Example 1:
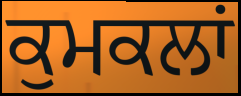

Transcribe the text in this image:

ਕੁਮਕਲਾਂ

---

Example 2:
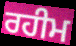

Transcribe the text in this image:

ਰਹੀਮ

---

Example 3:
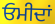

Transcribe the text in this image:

ਓਮੀਦਾਂ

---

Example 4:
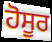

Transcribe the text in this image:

ਹੋਸੂਰ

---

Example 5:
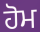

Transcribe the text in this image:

ਹੋਮ